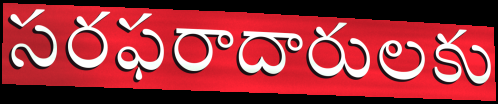
సరఫరాదారులకు